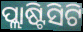
ପ୍ଲାଷ୍ଟିସିଟି